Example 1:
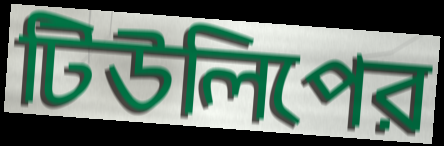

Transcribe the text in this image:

টিউলিপের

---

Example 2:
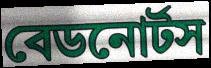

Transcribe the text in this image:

বেডনোর্টস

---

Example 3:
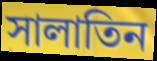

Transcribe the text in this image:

সালাতিন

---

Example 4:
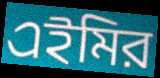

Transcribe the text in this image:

এইমির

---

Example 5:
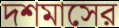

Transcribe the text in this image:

দশমাসের